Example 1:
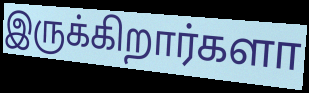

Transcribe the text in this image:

இருக்கிறார்களா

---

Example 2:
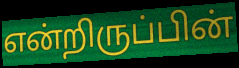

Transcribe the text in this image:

என்றிருப்பின்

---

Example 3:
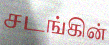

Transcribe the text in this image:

சடங்கின்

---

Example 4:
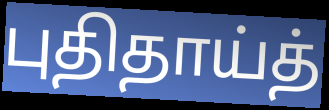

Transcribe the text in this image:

புதிதாய்த்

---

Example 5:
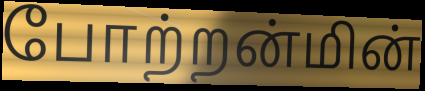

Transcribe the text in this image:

போற்றன்மின்